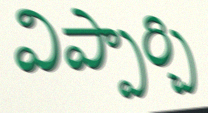
విప్పార్చి